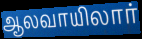
ஆலவாயிலார்